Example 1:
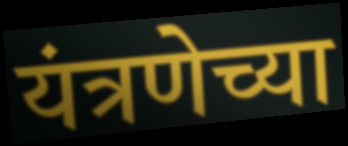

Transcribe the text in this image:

यंत्रणेच्या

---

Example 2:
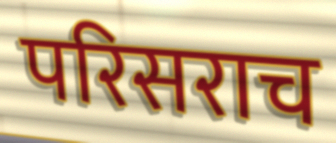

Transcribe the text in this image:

परिसराच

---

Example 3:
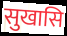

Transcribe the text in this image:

सुखासि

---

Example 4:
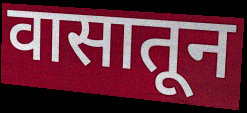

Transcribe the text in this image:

वासातून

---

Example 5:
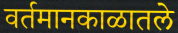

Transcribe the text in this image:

वर्तमानकाळातले